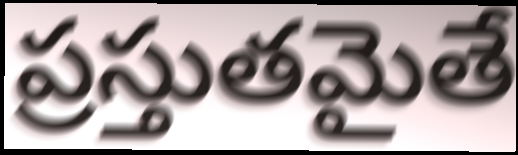
ప్రస్తుతమైతే